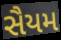
સૈયમ